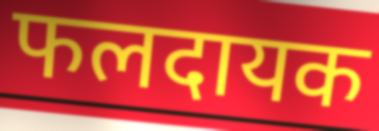
फलदायक